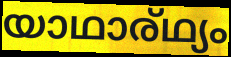
യാഥാര്ഥ്യം